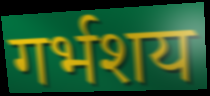
गर्भशय